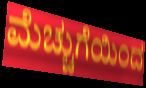
ಮೆಚ್ಚುಗೆಯಿಂದ